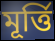
মূর্ত্তি